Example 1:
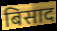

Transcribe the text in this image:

बिसाद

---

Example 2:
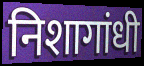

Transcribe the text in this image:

निशागांधी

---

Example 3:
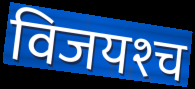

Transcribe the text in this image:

विजयश्च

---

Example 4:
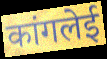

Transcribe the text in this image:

कांगलेई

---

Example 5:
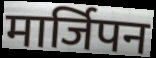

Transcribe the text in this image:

मार्जिपन